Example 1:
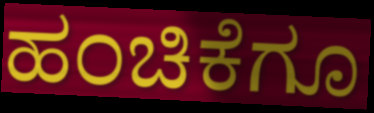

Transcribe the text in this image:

ಹಂಚಿಕೆಗೂ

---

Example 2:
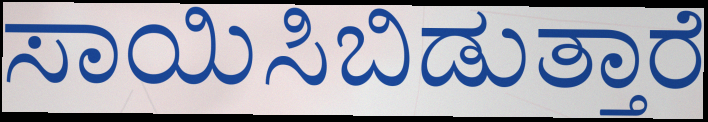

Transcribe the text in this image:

ಸಾಯಿಸಿಬಿಡುತ್ತಾರೆ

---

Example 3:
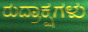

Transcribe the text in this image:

ರುದ್ರಾಕ್ಷಗಳು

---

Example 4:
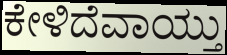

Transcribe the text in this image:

ಕೇಳಿದೆವಾಯ್ತು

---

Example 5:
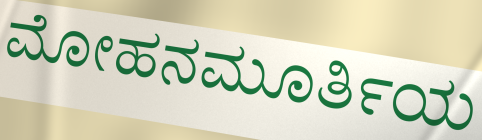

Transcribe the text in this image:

ಮೋಹನಮೂರ್ತಿಯ